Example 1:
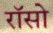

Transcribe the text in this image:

रॉसो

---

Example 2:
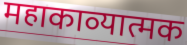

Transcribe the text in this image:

महाकाव्‍यात्‍मक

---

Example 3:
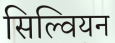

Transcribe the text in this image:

सिल्वियन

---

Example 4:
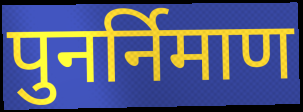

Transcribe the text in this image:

पुनर्निमाण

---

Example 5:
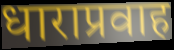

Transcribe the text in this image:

धाराप्रवाह